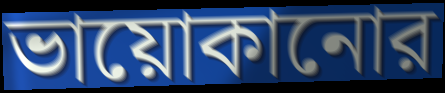
ভায়োকানোর